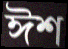
ঈশ